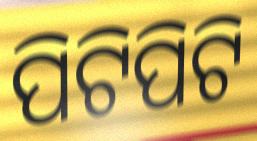
ପିଟିପିଟି